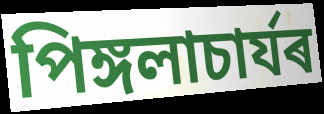
পিঙ্গলাচাৰ্যৰ